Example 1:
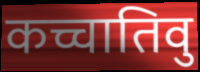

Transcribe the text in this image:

कच्चातिवु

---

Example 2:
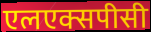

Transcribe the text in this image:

एलएक्सपीसी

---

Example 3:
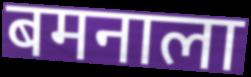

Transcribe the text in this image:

बमनाला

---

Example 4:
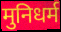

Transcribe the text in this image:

मुनिधर्म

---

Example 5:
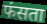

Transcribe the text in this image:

फंसता